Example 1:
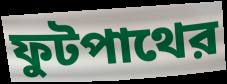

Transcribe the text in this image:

ফুটপাথের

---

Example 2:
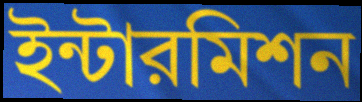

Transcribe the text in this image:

ইন্টারমিশন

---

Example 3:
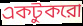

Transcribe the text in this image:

একটুকরো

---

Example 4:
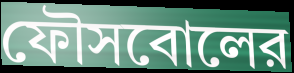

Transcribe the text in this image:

ফৌসবোলের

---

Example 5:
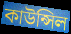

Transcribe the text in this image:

কাউন্সিল